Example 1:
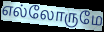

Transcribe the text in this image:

எல்லோருமே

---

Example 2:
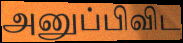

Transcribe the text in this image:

அனுப்பிவிட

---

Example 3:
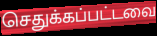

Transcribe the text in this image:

செதுக்கப்பட்டவை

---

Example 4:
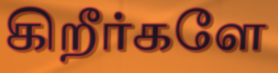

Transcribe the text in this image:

கிறீர்களே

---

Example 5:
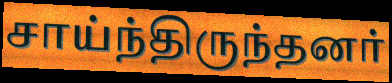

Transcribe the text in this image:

சாய்ந்திருந்தனர்